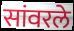
सांवरले